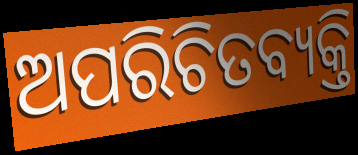
ଅପରିଚିତବ୍ୟକ୍ତି